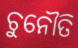
ଚୁନୌତି